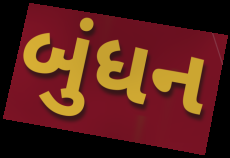
બુંધન